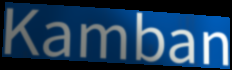
Kamban